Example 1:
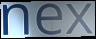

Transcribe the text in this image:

nex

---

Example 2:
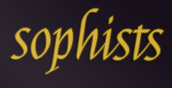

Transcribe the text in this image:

sophists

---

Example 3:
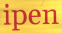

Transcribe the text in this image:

ipen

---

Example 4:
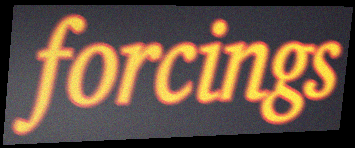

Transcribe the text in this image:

forcings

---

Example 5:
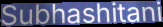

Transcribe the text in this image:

Subhashitani